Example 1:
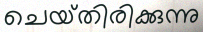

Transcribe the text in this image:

ചെയ്‌തിരിക്കുന്നു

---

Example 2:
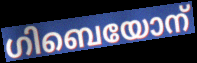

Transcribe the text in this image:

ഗിബെയോന്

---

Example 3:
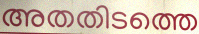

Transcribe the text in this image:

അതതിടത്തെ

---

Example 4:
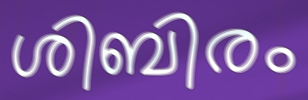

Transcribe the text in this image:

ശിബിരം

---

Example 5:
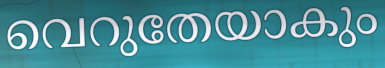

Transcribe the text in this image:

വെറുതേയാകും